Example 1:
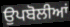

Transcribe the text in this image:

ਉਪਬੋਲੀਆਂ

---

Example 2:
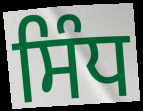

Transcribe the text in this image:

ਸਿੰਧ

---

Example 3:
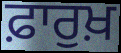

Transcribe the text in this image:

ਫ਼ਾਰੁਖ਼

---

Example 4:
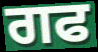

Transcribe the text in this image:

ਗਫ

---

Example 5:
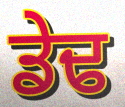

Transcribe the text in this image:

ਡੇਢ